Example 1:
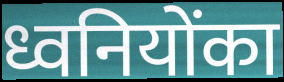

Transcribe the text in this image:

ध्वनियोंका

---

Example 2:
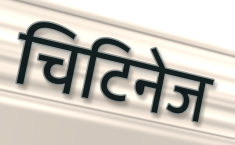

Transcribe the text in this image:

चिटिनेज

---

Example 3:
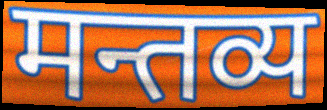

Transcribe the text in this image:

मन्तव्य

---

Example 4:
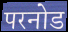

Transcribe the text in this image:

परनोड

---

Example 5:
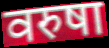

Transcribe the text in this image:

वरुषा